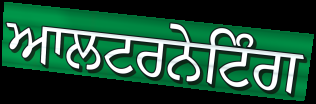
ਆਲਟਰਨੇਟਿੰਗ